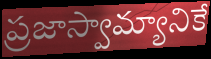
ప్రజాస్వామ్యానికే